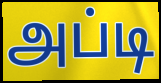
அப்டி